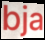
bja